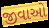
જીવાઓ